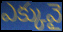
ఎక్కువై